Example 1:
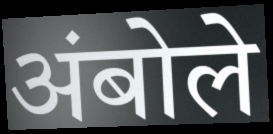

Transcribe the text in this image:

अंबोले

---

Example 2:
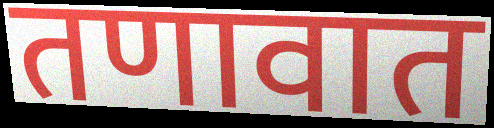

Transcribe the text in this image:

तणावात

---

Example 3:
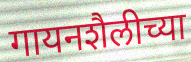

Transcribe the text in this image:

गायनशैलीच्या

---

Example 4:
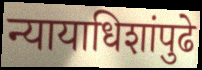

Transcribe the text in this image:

न्यायाधिशांपुढे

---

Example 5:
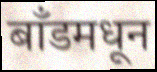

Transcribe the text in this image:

बाँडमधून